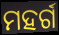
ମହର୍ଗ